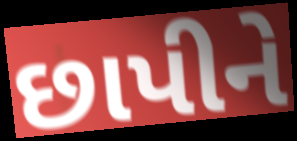
છાપીને